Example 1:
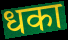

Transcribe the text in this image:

धका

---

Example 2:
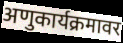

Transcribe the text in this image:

अणुकार्यक्रमावर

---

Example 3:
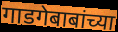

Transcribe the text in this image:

गाडगेबाबांच्या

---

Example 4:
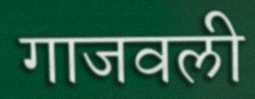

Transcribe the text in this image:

गाजवली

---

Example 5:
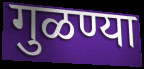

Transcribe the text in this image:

गुळण्या